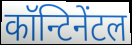
कॉन्टिनेंटल